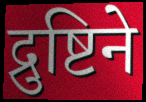
द्रुष्टिने